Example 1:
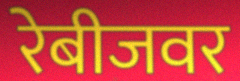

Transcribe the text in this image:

रेबीजवर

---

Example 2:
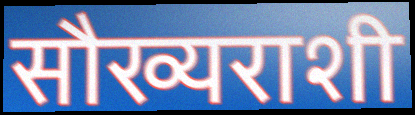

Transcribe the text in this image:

सौख्यराशी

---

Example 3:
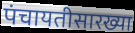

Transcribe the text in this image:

पंचायतीसारख्या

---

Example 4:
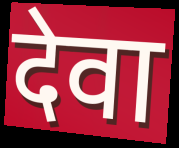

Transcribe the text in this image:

देवा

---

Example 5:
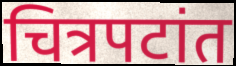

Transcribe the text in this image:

चित्रपटांत